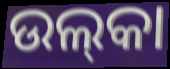
ଉଲ୍‍କା